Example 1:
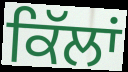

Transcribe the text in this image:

ਕਿੱਲਾਂ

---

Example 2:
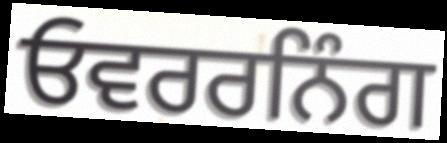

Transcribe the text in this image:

ਓਵਰਰਨਿੰਗ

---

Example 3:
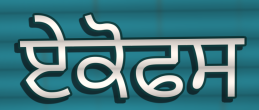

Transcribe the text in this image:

ਏਕੋਫਸ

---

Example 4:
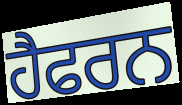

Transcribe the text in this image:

ਹੈਫਰਨ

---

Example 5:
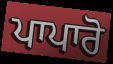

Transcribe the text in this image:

ਪਾਪਾਰੋ